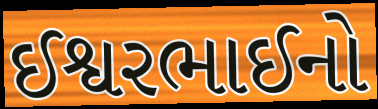
ઈશ્વરભાઈનો